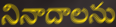
నినాదాలను